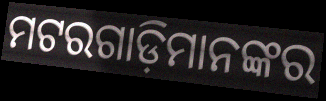
ମଟରଗାଡ଼ିମାନଙ୍କର